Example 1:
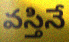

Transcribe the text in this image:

వస్తినే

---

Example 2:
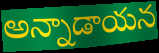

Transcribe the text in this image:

అన్నాడాయన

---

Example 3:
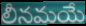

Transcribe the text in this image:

లీనమయే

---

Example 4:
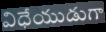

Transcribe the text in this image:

విధేయుడుగా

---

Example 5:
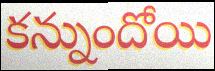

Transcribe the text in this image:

కన్నుందోయి